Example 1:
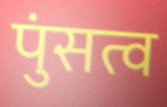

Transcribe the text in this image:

पुंसत्व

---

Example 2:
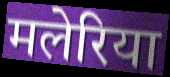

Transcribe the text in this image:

मलेरिया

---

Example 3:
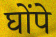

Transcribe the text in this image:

घोंपे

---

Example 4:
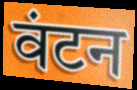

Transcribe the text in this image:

वंटन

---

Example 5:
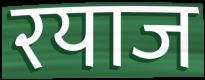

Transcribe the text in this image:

रयाज